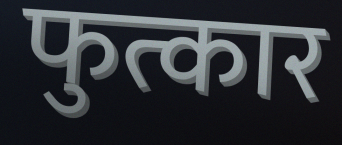
फुत्कार